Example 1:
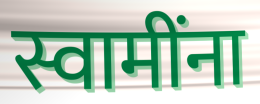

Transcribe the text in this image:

स्वामींना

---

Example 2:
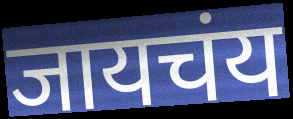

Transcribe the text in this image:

जायचंय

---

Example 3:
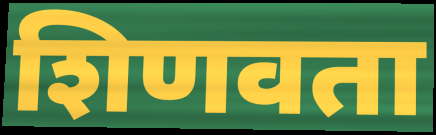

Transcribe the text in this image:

शिणवता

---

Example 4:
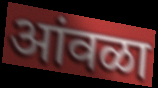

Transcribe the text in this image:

आंवळा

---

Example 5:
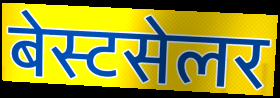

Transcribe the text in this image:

बेस्टसेलर